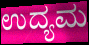
ಉದ್ಯಮ